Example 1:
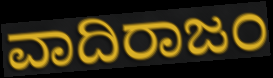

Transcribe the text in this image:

ವಾದಿರಾಜಂ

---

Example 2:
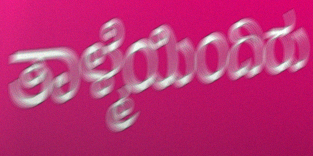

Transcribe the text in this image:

ತಾಳ್ಮೆಯಿಂದಿರು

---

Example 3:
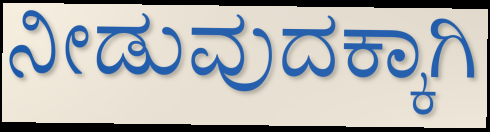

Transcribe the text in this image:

ನೀಡುವುದಕ್ಕಾಗಿ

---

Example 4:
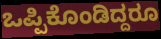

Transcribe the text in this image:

ಒಪ್ಪಿಕೊಂಡಿದ್ದರೂ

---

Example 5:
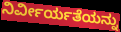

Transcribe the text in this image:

ನಿರ್ವೀರ್ಯತೆಯನ್ನು